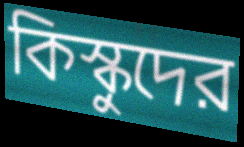
কিস্কুদের